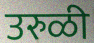
उरुळी